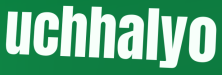
uchhalyo